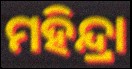
ମହିନ୍ଦ୍ରା